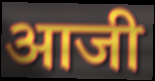
आजी